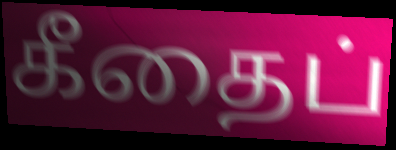
கீதைப்